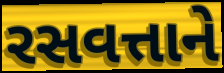
રસવત્તાને